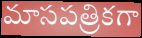
మాసపత్రికగా